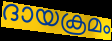
ദായക്രമം